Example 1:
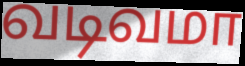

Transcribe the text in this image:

வடிவமா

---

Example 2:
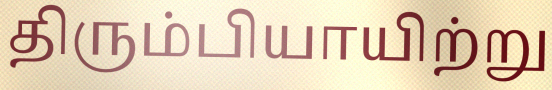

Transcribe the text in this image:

திரும்பியாயிற்று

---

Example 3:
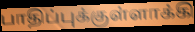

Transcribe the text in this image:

பாதிப்புக்குள்ளாக்கி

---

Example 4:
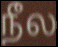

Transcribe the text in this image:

நீல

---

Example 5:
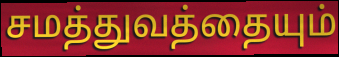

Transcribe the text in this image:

சமத்துவத்தையும்